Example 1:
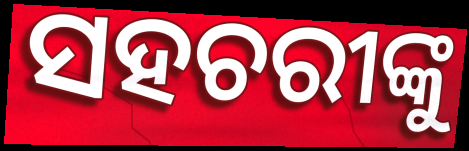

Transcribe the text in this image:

ସହଚରୀଙ୍କୁ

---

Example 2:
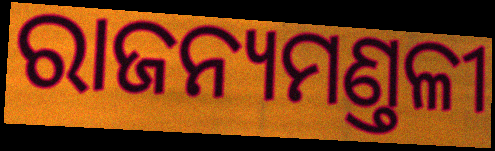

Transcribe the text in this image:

ରାଜନ୍ୟମଣ୍ତଳୀ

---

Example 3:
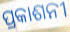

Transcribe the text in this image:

ପ୍ରକାଶନୀ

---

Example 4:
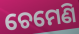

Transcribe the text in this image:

ଚେମେଣି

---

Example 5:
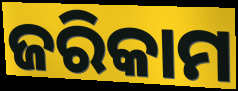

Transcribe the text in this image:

ଜରିକାମ